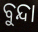
ବୁନ୍ଦା